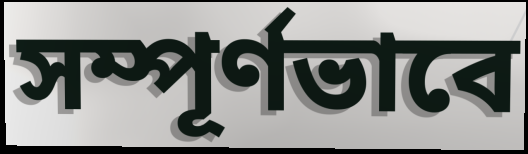
সম্পূর্ণভাবে